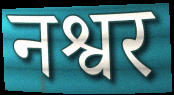
नश्वर